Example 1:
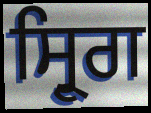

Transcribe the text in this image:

ਸ੍ਟ੍ਰਿਗ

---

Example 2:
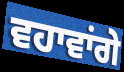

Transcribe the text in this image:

ਵਹਾਵਾਂਗੇ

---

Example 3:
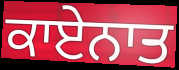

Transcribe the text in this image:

ਕਾਏਨਾਤ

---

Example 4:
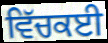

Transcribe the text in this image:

ਵਿੱਚਕਈ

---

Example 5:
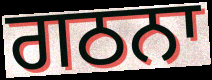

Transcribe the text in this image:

ਗਠਨਾ